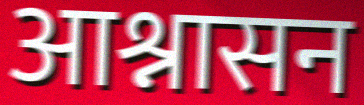
आश्नासन